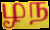
ழந